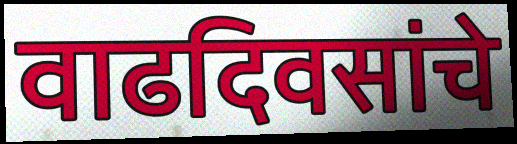
वाढदिवसांचे